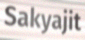
Sakyajit